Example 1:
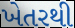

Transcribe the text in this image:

ખેતરથી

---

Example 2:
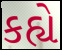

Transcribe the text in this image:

કહ્યે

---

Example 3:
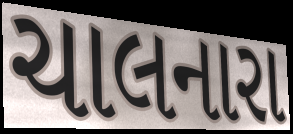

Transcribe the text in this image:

ચાલનારા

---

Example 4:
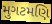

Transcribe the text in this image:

મુગટમણિ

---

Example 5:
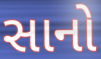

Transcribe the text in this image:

સાનો